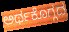
ಅರ್ಥಕೊಗ್ಗದ